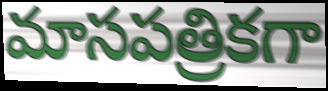
మాసపత్రికగా